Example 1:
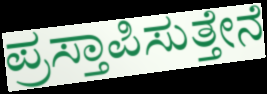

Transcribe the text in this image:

ಪ್ರಸ್ತಾಪಿಸುತ್ತೇನೆ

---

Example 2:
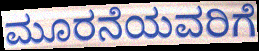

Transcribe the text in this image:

ಮೂರನೆಯವರಿಗೆ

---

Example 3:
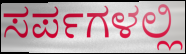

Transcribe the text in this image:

ಸರ್ಪಗಳಲ್ಲಿ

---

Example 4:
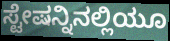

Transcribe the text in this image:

ಸ್ಟೇಷನ್ನಿನಲ್ಲಿಯೂ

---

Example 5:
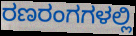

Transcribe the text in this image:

ರಣರಂಗಗಳಲ್ಲಿ